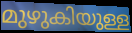
മുഴുകിയുള്ള